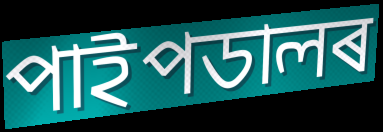
পাইপডালৰ